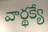
వార్థక్యే